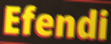
Efendi